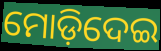
ମୋଡ଼ିଦେଇ